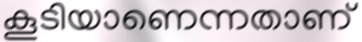
കൂടിയാണെന്നതാണ്